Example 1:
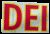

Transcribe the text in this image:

DEI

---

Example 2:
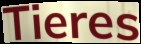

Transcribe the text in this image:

Tieres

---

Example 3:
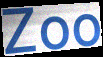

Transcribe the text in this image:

Zoo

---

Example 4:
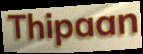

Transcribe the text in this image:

Thipaan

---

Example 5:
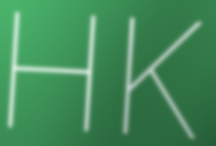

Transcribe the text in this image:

HK